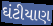
ઘંટીયાણ